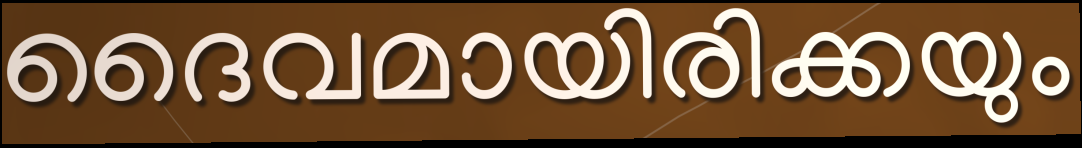
ദൈവമായിരിക്കയും